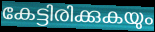
കേട്ടിരിക്കുകയും